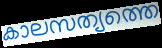
കാലസത്യത്തെ